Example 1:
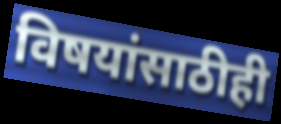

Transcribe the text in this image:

विषयांसाठीही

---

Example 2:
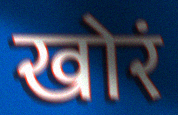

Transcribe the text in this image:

खोरं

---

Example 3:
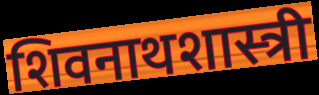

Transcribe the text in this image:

शिवनाथशास्त्री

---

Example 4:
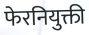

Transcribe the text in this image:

फेरनियुक्ती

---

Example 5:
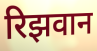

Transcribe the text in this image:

रिझवान